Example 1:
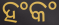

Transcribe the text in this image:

ହଂକଂ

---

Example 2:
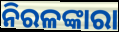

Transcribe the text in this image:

ନିରଳଙ୍କାରା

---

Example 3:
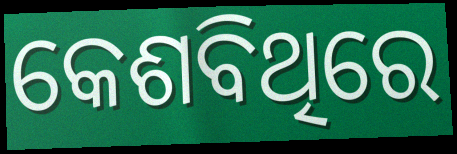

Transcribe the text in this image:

କେଶବିଥିରେ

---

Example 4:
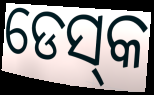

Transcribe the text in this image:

ଡେସ୍‌କ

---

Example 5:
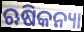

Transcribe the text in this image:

ଋଷିକନ୍ୟା